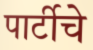
पार्टीचे